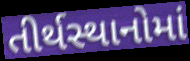
તીર્થસ્થાનોમાં